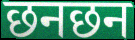
छनछन